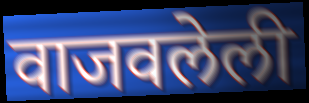
वाजवलेली